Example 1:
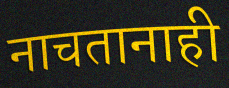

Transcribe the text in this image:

नाचतानाही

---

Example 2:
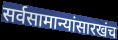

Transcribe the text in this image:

सर्वसामान्यांसारखंच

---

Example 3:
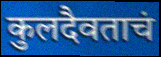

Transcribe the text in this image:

कुलदैवताचं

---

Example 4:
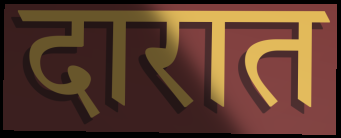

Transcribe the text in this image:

दारात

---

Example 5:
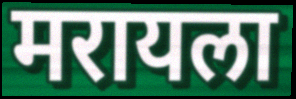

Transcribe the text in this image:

मरायला